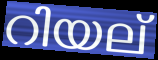
റിയല്